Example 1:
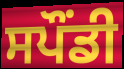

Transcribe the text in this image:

ਸਪੌਂਡੀ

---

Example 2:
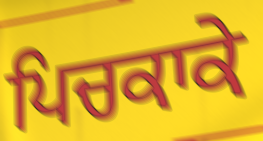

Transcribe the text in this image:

ਪਿਚਕਾਕੇ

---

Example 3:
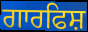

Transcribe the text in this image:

ਗਾਰਫਿਸ਼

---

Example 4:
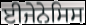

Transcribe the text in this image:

ਈਜੇਨੇਸਿਸ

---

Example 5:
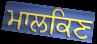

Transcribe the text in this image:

ਮਾਲਕਿਣ